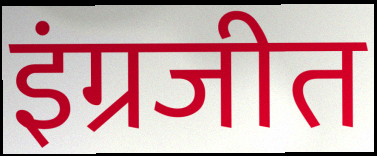
इंग्रजीत